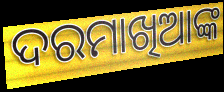
ଦରମାଖିଆଙ୍କ